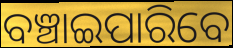
ବଞ୍ଚାଇପାରିବେ